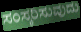
ಸಂಸ್ಕರಿಸುವುದು